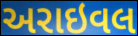
અરાઇવલ